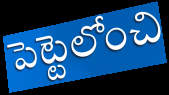
పెట్టెలోంచి